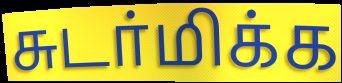
சுடர்மிக்க